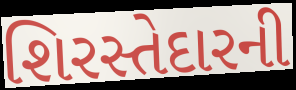
શિરસ્તેદારની